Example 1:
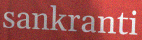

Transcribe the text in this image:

sankranti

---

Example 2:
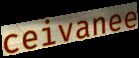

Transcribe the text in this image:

ceivanee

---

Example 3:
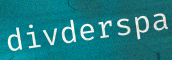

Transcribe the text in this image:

divderspa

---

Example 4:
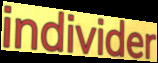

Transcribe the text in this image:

individer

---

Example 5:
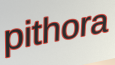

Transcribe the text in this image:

pithora